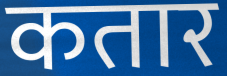
कतार